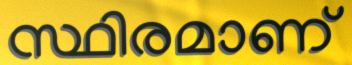
സ്ഥിരമാണ്